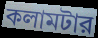
কলামটার